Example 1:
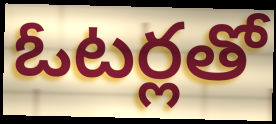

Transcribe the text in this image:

ఓటర్లతో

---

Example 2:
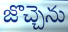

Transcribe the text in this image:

జొచ్చెను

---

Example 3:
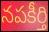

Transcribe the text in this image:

నపకీర్తి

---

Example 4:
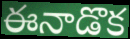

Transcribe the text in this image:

ఈనాడొక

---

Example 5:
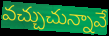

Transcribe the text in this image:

వచ్చుచున్నావే